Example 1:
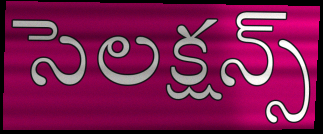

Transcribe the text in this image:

సెలక్షన్స్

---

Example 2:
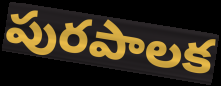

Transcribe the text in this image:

పురపాలక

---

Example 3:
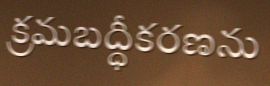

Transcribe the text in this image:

క్రమబద్ధీకరణను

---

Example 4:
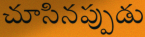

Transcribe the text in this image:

చూసినప్పుడు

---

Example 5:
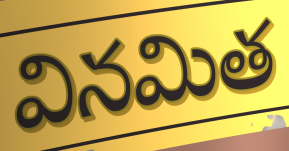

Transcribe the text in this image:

వినమిత